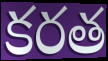
కరత